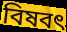
বিষবৎ